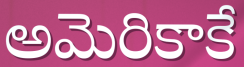
అమెరికాకే